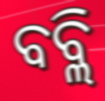
ବବ୍ଲି